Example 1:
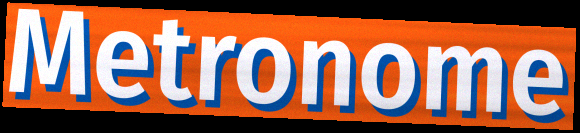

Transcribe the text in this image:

Metronome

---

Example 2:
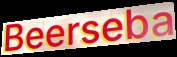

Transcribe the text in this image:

Beerseba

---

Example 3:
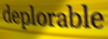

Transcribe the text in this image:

deplorable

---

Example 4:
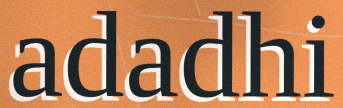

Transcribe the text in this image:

adadhi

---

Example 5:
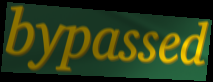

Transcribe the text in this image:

bypassed